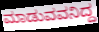
ಮಾಡುವವನಿದ್ದ